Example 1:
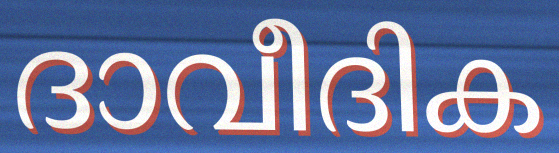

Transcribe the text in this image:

ദാവീദിക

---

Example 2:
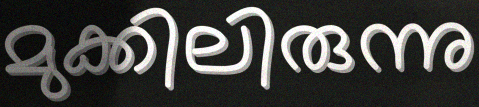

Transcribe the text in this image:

മുക്കിലിരുന്നു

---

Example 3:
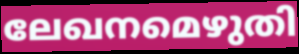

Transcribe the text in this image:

ലേഖനമെഴുതി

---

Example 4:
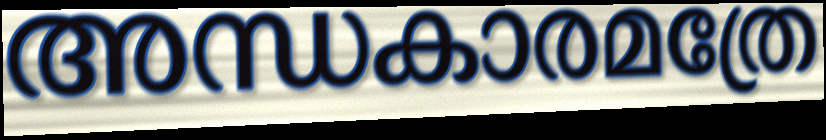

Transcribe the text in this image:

അന്ധകാരമത്രേ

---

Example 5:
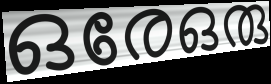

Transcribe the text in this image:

ഒരേഒരു